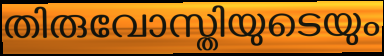
തിരുവോസ്തിയുടെയും